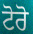
ਟੋਰੋ